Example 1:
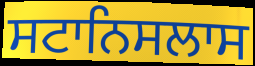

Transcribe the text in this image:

ਸਟਾਨਿਸਲਾਸ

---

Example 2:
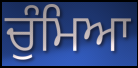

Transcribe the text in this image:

ਚੁੰਮਿਆ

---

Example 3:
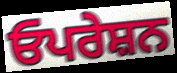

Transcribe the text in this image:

ਓਪਰੇਸ਼ਨ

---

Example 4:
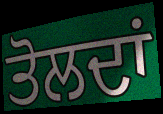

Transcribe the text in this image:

ਤੋਲਦਾਂ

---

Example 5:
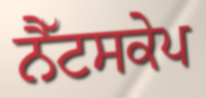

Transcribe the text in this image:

ਨੈੱਟਸਕੇਪ